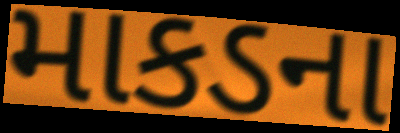
માકડના